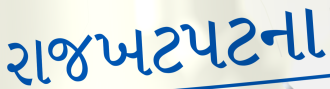
રાજખટપટના